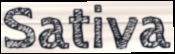
Sativa